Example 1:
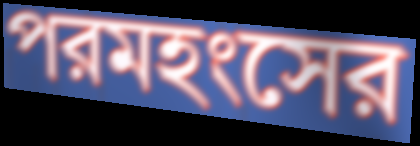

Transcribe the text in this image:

পরমহংসের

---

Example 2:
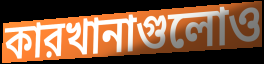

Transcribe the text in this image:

কারখানাগুলোও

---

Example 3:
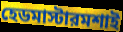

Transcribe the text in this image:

হেডমাস্টারমশাই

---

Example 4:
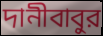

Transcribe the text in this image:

দানীবাবুর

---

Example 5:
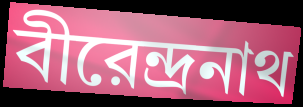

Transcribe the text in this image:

বীরেন্দ্রনাথ